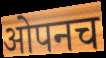
ओपनच